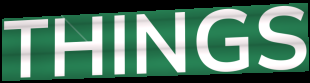
THINGS